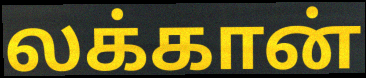
லக்கான்